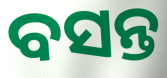
ବସନ୍ତ